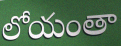
లోయంతా